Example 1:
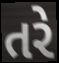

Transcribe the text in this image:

તરે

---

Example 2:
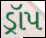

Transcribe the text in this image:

ડ્રૉપ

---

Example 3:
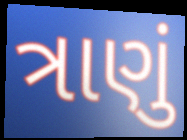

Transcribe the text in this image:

ત્રાણું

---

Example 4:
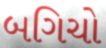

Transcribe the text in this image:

બગિચો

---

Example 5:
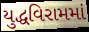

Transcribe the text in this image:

યુદ્ધવિરામમાં